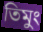
তিমুং